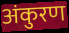
अंकुरण